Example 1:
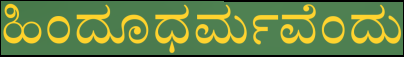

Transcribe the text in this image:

ಹಿಂದೂಧರ್ಮವೆಂದು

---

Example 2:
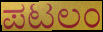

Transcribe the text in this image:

ಪಟಲಂ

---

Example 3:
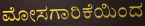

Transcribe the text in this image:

ಮೋಸಗಾರಿಕೆಯಿಂದ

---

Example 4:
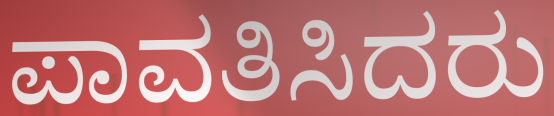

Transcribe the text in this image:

ಪಾವತಿಸಿದರು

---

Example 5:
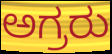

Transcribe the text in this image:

ಅಗ್ರರು